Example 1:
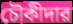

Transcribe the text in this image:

চৌকীদার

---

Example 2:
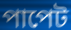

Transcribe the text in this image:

পাপেট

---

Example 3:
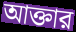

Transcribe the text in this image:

আক্তার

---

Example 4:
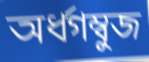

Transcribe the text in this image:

অর্ধগম্বুজ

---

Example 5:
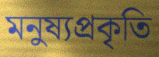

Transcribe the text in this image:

মনুষ্যপ্রকৃতি